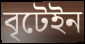
বৃটেইন